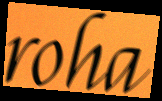
roha